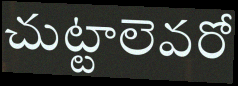
చుట్టాలెవరో